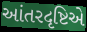
આંતરદૃષ્ટિએ